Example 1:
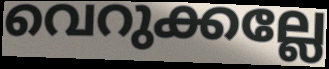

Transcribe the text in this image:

വെറുക്കല്ലേ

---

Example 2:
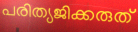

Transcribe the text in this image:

പരിത്യജിക്കരുത്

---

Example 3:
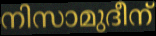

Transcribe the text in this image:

നിസാമുദീന്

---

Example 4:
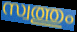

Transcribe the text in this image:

സ്വത്തും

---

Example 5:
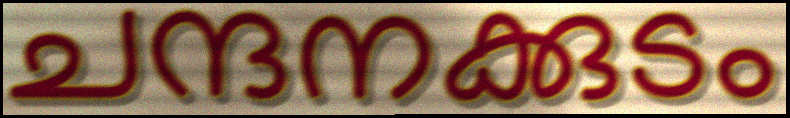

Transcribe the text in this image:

ചന്ദനക്കുടം